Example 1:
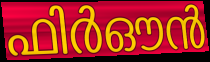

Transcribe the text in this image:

ഫിർഔൻ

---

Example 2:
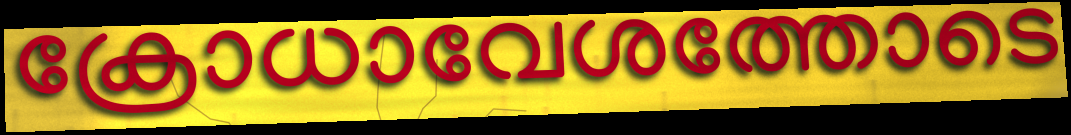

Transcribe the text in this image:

ക്രോധാവേശത്തോടെ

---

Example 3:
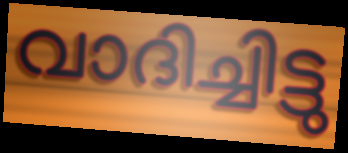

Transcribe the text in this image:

വാദിച്ചിട്ടു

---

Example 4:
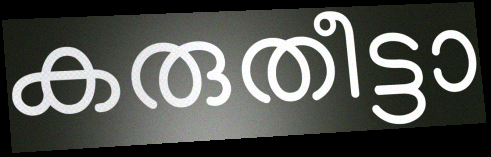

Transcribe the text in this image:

കരുതീട്ടാ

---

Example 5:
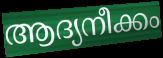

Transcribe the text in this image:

ആദ്യനീക്കം